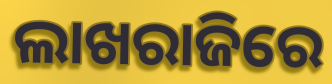
ଲାଖରାଜିରେ